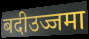
बदीउज्जमा